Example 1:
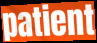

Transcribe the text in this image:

patient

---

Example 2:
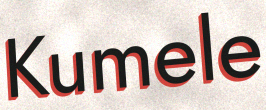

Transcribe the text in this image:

Kumele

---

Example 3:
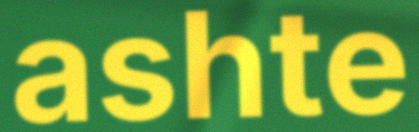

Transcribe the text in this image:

ashte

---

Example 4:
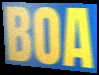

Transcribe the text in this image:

BOA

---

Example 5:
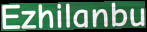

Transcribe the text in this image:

Ezhilanbu